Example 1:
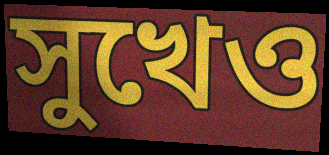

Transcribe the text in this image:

সুখেও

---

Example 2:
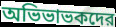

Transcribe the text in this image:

অভিভাভকদের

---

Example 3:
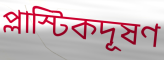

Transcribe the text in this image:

প্লাস্টিকদূষণ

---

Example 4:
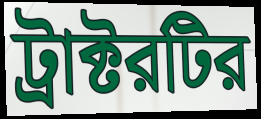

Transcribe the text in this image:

ট্রাক্টরটির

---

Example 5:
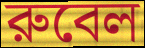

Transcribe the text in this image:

রুবেল